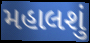
મહાલશું